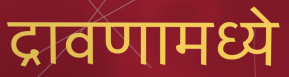
द्रावणामध्ये